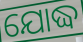
ଯୋଦ୍ଧ